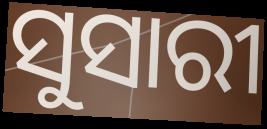
ସୁସାରୀ